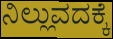
ನಿಲ್ಲುವದಕ್ಕೆ